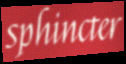
sphincter